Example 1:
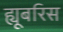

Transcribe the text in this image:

ह्यूबरिस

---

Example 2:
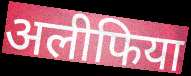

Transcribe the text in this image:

अलीफिया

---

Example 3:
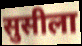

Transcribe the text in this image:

सुसीला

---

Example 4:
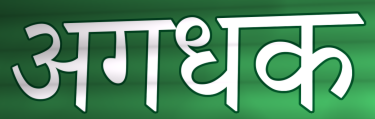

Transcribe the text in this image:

अगधक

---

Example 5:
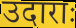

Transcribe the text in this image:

उदाराः